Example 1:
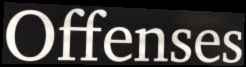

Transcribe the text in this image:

Offenses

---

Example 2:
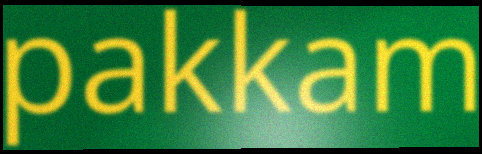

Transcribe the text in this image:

pakkam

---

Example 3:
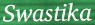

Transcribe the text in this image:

Swastika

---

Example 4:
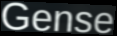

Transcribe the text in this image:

Gense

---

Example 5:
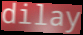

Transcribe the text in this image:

dilay